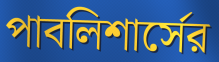
পাবলিশার্সের